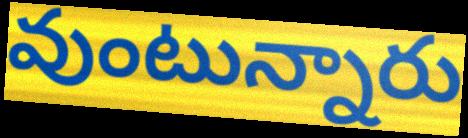
వుంటున్నారు